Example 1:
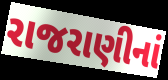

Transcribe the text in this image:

રાજરાણીનાં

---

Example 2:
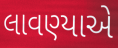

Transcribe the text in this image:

લાવણ્યાએ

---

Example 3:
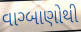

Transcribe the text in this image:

વાગ્બાણોથી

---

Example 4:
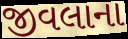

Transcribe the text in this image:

જીવલાના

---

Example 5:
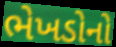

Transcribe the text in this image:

ભેખડોનો